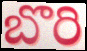
బొరి